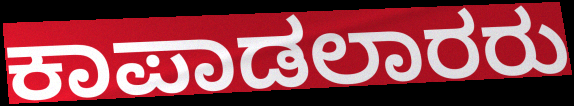
ಕಾಪಾಡಲಾರರು